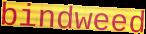
bindweed